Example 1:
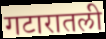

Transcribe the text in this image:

गटारातली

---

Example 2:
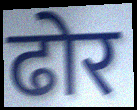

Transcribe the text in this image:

ढोर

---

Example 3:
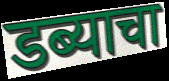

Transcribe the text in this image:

डब्याचा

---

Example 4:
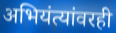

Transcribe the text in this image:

अभियंत्यांवरही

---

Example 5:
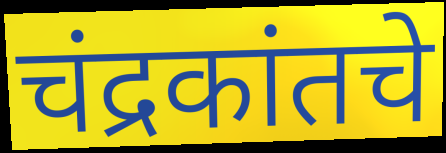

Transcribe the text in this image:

चंद्रकांतचे